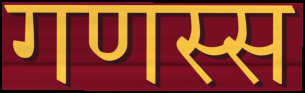
गणस्स